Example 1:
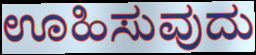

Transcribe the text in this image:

ಊಹಿಸುವುದು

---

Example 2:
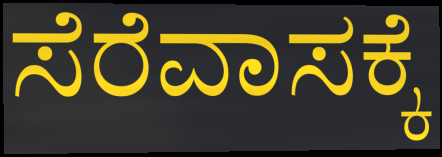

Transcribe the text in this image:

ಸೆರೆವಾಸಕ್ಕೆ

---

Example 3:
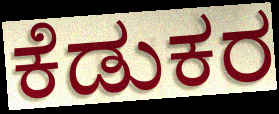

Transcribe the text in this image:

ಕೆಡುಕರ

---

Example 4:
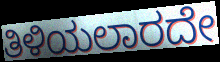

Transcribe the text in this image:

ತಿಳಿಯಲಾರದೇ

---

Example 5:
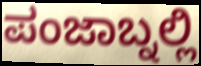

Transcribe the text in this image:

ಪಂಜಾಬ್ನಲ್ಲಿ